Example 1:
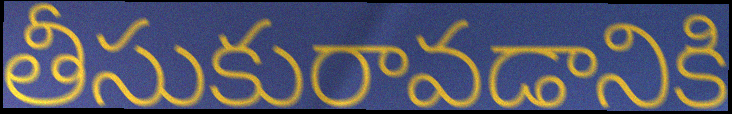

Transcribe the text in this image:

తీసుకురావడానికి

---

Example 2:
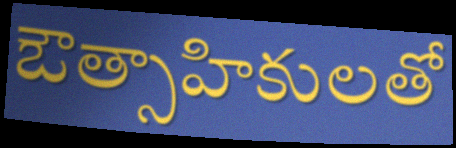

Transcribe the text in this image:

ఔత్సాహికులతో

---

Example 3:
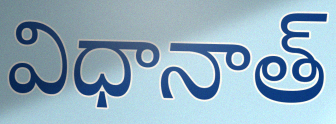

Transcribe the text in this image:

విధానాత్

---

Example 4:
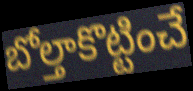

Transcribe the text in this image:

బోల్తాకొట్టించే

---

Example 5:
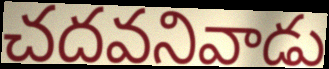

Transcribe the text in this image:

చదవనివాడు